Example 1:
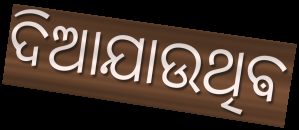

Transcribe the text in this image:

ଦିଆଯାଉଥିଵ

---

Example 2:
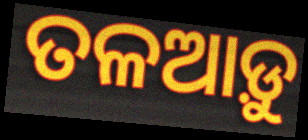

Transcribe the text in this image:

ତଳଆଡ଼ୁ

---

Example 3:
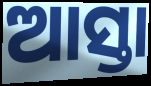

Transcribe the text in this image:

ଆସ୍ତା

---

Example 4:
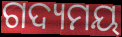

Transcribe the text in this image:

ଗଦ୍ୟମୟ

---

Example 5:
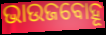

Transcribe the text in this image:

ଭାଉଜବୋହୂ